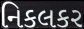
નિકલકર